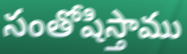
సంతోషిస్తాము